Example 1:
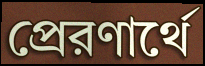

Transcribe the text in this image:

প্রেরণার্থে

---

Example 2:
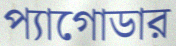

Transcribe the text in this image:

প্যাগোডার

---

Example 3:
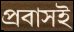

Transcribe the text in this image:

প্রবাসই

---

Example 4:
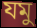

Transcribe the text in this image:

যমু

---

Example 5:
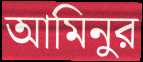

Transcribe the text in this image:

আমিনুর